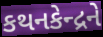
કથનકેન્દ્રને